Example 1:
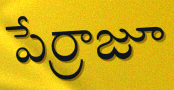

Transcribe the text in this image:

పేర్రాజూ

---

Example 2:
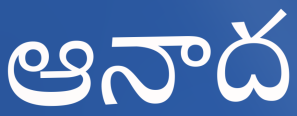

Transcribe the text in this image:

ఆనాద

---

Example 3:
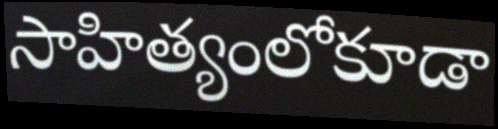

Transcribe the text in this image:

సాహిత్యంలోకూడా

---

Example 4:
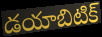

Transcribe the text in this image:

డయాబిటిక్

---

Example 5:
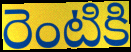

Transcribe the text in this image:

రెంటికి